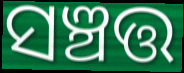
ସଞ୍ଚତ୍ତ